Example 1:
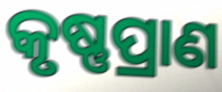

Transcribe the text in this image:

କୃଷ୍ଣପ୍ରାଣ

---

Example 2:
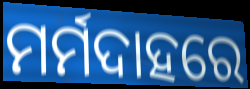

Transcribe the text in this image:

ମର୍ମଦାହରେ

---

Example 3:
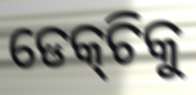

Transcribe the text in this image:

ଡେକ୍‌ଚିକୁ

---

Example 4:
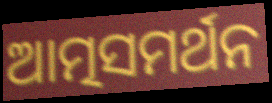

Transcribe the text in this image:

ଆତ୍ମସମର୍ଥନ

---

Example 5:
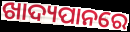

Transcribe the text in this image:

ଖାଦ୍ୟପାନରେ